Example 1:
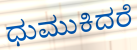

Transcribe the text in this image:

ಧುಮುಕಿದರೆ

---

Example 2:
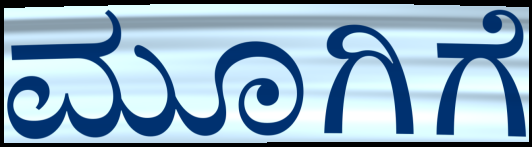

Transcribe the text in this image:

ಮೂಗಿಗೆ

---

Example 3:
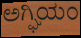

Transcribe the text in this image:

ಅಗ್ಘಿಯಂ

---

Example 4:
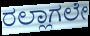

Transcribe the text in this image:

ರಲ್ಲಾಗಲೇ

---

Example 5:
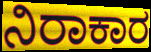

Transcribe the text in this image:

ನಿರಾಕಾರ